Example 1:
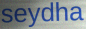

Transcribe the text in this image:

seydha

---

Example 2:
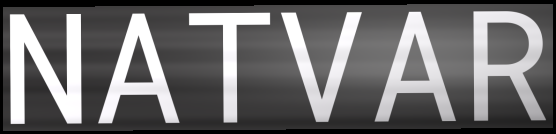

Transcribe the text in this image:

NATVAR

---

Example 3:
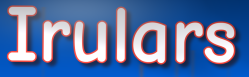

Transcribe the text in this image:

Irulars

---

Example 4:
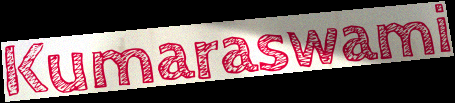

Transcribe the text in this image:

Kumaraswami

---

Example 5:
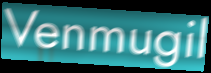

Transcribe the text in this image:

Venmugil